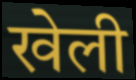
खेली